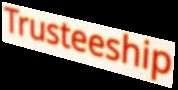
Trusteeship